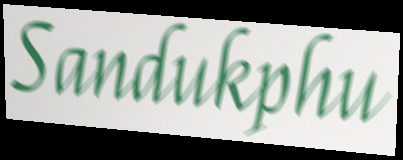
Sandukphu